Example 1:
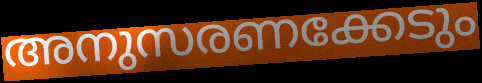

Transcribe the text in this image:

അനുസരണക്കേടും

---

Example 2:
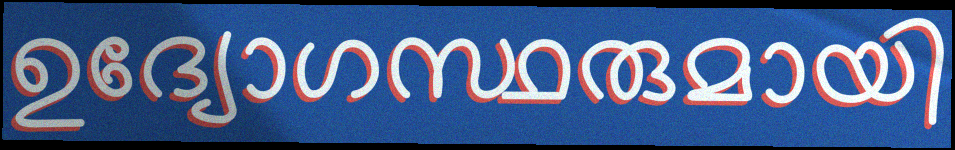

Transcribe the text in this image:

ഉദ്യോഗസ്ഥരുമായി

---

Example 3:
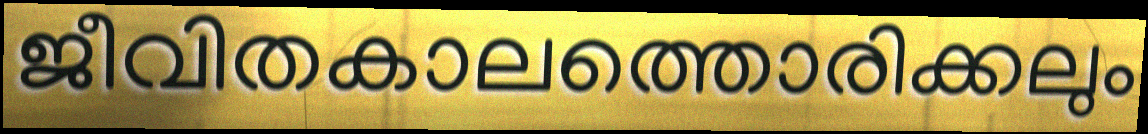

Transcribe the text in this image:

ജീവിതകാലത്തൊരിക്കലും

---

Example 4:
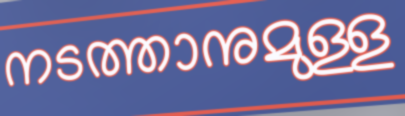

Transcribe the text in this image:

നടത്താനുമുള്ള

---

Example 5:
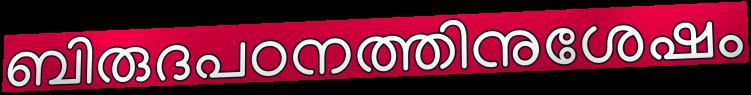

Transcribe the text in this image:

ബിരുദപഠനത്തിനുശേഷം